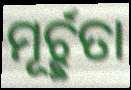
ମୂର୍ଚ୍ଛତା